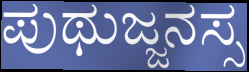
ಪುಥುಜ್ಜನಸ್ಸ